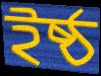
ইষ্ঠ